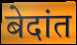
बेदांत